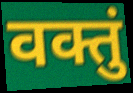
वक्तुं